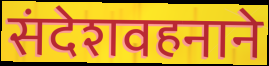
संदेशवहनाने